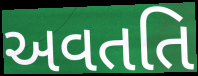
અવતતિ